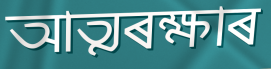
আত্মৰক্ষাৰ